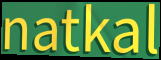
natkal